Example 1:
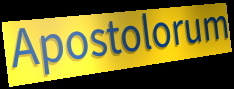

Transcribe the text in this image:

Apostolorum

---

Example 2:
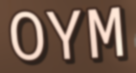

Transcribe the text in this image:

OYM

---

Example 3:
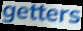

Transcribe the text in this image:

getters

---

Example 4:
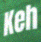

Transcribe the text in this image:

Keh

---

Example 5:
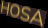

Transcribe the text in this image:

HOSA